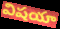
విషయా